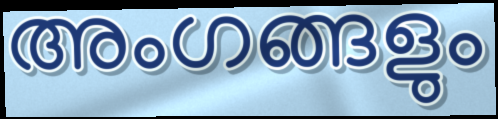
അംഗങ്ങളും